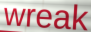
wreak